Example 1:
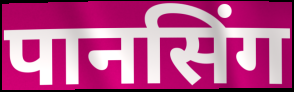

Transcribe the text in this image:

पानसिंग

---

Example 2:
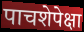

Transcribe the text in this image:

पाचशेपेक्षा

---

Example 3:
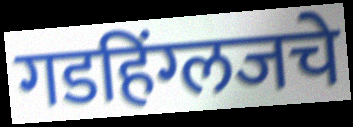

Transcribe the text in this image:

गडहिंग्लजचे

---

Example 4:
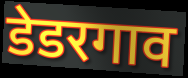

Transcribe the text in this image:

डेडरगाव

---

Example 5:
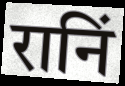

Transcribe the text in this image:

रानिं